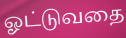
ஓட்டுவதை